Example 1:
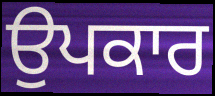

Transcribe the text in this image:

ਉਪਕਾਰ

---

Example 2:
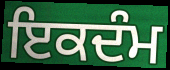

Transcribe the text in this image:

ਇਕਦੰਮ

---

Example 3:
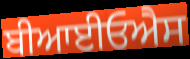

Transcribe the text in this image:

ਬੀਆਈਓਐਸ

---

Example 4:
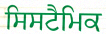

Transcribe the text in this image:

ਸਿਸਟੈਮਿਕ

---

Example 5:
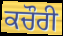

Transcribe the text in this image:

ਕਚੌਰੀ